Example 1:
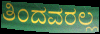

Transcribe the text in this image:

ತಿಂದವರಲ್ಲ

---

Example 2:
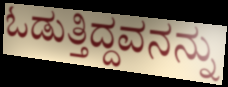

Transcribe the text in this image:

ಓಡುತ್ತಿದ್ದವನನ್ನು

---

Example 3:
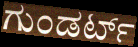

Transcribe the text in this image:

ಗುಂಡರ್ಟ್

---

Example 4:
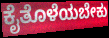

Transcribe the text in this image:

ಕೈತೊಳೆಯಬೇಕು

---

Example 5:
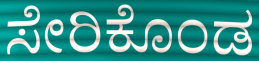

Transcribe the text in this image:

ಸೇರಿಕೊಂಡ